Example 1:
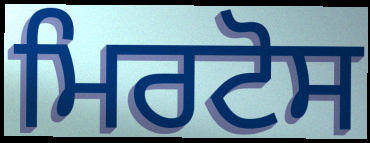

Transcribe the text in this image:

ਮਿਰਟੋਸ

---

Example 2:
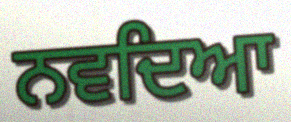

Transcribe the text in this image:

ਨਵਦਿਆ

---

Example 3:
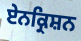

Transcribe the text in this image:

ਏਨਕ੍ਰਿਸ਼ਨ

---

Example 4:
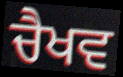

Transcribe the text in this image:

ਚੈਖਵ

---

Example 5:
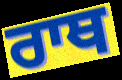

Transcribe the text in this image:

ਰਾਥ